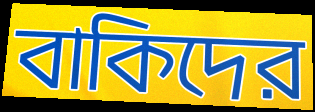
বাকিদের